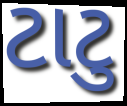
ટાટુ